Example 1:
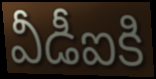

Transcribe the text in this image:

వీడీఐకి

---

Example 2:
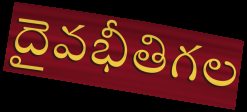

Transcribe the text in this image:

దైవభీతిగల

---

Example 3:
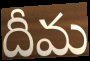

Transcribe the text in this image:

దీమ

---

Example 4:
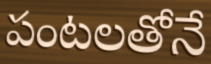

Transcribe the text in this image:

పంటలతోనే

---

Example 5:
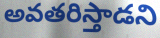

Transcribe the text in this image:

అవతరిస్తాడని